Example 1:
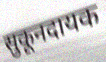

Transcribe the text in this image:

सुकूनदायक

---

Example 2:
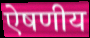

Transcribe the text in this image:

ऐषणीय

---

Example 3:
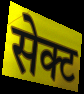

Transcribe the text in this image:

सेक्ट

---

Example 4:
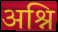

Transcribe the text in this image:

अश्नि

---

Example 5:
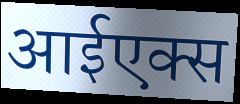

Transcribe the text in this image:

आईएक्स